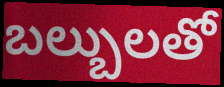
బల్బులతో